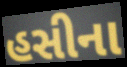
હસીના